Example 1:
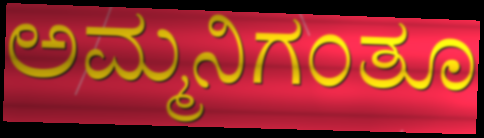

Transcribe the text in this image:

ಅಮ್ಮನಿಗಂತೂ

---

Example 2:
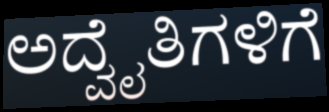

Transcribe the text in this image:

ಅದ್ವೈತಿಗಳಿಗೆ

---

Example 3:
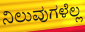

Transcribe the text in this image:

ನಿಲುವುಗಳೆಲ್ಲ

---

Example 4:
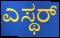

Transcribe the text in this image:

ಎಸ್ಥರ್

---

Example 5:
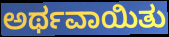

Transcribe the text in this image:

ಅರ್ಥವಾಯಿತು